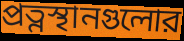
প্রত্নস্থানগুলোর